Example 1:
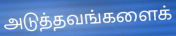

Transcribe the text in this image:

அடுத்தவங்களைக்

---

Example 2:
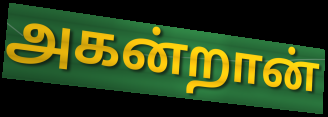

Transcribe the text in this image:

அகன்றான்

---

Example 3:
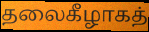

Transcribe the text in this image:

தலைகீழாகத்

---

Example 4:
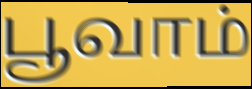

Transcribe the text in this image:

பூவாம்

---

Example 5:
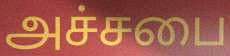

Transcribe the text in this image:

அச்சபை